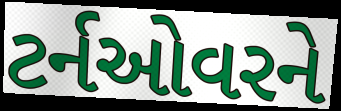
ટર્નઓવરને